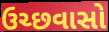
ઉચ્છવાસો